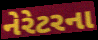
નેરેટરના